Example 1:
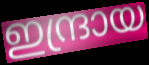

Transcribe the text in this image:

ഇന്ദ്രായ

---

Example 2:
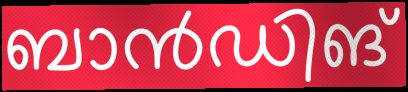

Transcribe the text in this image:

ബാൻഡിങ്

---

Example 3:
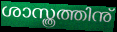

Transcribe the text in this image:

ശാസ്ത്രത്തിനു്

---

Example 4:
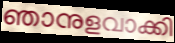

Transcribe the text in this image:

ഞാനുളവാക്കി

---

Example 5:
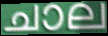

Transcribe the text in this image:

ചാല